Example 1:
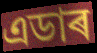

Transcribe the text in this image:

এডাৰ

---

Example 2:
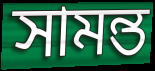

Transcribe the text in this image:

সামন্ত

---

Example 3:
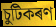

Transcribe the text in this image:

চুটিকৰণ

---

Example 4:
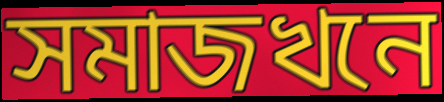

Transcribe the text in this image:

সমাজখনে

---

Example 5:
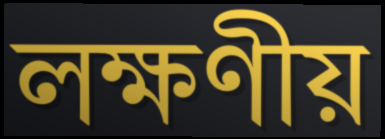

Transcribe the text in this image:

লক্ষণীয়